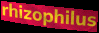
rhizophilus